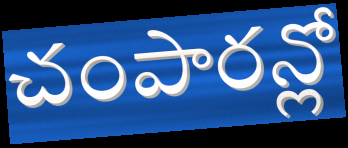
చంపారన్లో